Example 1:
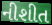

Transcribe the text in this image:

નીશીત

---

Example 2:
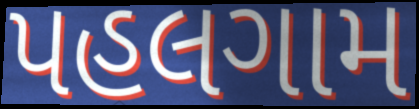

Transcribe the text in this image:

પહલગામ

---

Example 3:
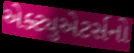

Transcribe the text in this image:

એક્ટ્યુએટર્સનો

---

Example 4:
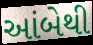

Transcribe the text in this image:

આંબેથી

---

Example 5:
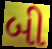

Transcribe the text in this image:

બી